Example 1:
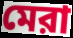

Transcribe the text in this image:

মেরা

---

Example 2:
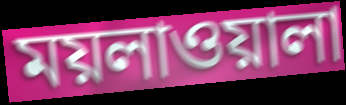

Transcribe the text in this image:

ময়লাওয়ালা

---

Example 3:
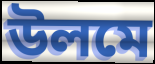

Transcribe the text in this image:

উলমে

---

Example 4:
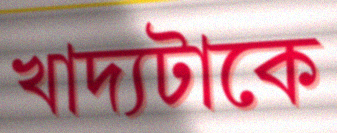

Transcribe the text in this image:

খাদ্যটাকে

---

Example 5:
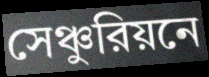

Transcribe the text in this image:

সেঞ্চুরিয়নে